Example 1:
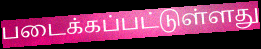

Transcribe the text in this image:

படைக்கப்பட்டுள்ளது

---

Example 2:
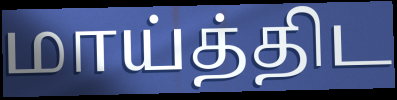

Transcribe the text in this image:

மாய்த்திட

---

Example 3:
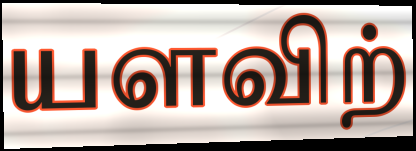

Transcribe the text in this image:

யளவிற்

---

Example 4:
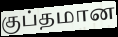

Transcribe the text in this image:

குப்தமான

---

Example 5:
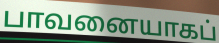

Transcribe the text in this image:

பாவனையாகப்